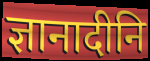
ज्ञानादीनि